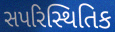
સપરિસ્થિતિક